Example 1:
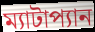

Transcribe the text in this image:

ম্যাটাপ্যান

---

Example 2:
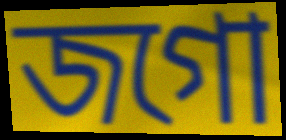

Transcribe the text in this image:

জগো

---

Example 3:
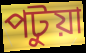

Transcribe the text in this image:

পটুয়া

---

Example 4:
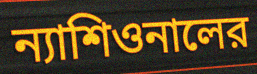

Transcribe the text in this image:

ন্যাশিওনালের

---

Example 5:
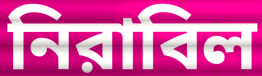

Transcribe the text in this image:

নিরাবিল